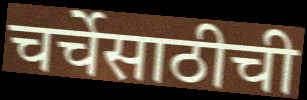
चर्चेसाठीची